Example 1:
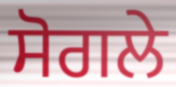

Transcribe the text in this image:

ਸੋਗਲੇ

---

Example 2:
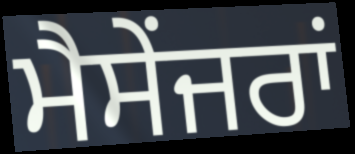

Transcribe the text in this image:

ਮੈਸੇਂਜਰਾਂ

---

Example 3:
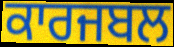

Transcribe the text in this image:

ਕਾਰਜਬਲ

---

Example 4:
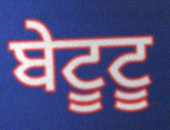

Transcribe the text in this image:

ਬੇਟੂਟੂ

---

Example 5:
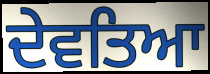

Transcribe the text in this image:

ਦੇਵਤਿਆ